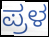
ಪ್ರಳ